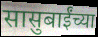
सासुबाईंच्या